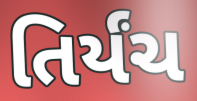
તિર્યંચ